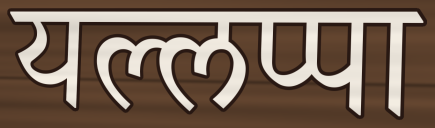
यल्लप्पा